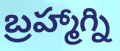
బ్రహ్మాగ్ని